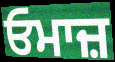
ਓਮਾਜ਼